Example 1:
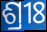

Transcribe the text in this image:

ଶ୍ରୀଃ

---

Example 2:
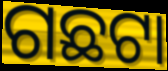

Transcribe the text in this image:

ଗଛଟା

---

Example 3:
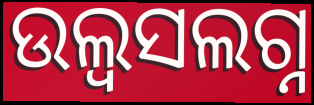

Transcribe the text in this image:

ଉଲ୍ୱସଲଗ୍ନ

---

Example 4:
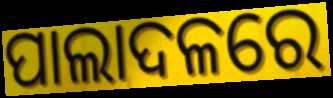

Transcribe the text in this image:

ପାଲାଦଳରେ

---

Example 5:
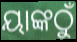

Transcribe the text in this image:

ୟାଙ୍କଠୁଁ